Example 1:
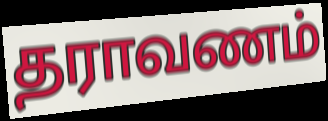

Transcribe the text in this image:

தராவணம்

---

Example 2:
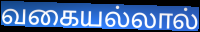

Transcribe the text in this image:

வகையல்லால்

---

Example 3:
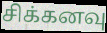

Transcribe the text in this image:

சிக்கனவு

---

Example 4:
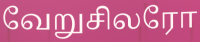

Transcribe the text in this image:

வேறுசிலரோ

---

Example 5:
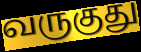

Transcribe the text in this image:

வருகுது